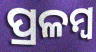
ପ୍ରଳମ୍ବ